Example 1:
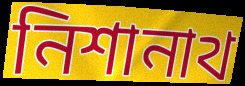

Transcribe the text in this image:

নিশানাথ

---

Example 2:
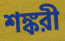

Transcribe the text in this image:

শঙ্করী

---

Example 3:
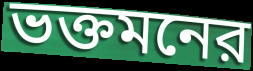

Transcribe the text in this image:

ভক্তমনের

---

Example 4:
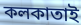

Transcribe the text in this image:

কলকাতাই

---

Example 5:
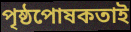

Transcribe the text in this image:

পৃষ্ঠপোষকতাই